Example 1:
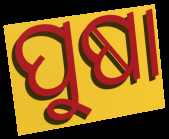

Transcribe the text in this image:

ପୁଷା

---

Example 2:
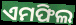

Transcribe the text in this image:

ଏମଫିଲ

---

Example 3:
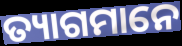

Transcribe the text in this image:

ତ୍ୟାଗମାନେ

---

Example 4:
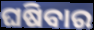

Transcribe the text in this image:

ଘଷିବାର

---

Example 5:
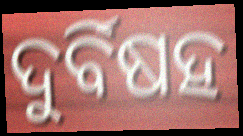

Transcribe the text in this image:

ଦୁର୍ବିଷହ